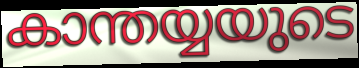
കാന്തയ്യയുടെ